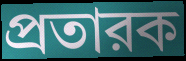
প্রতারক